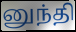
னுந்தி